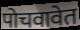
पोचवावेत